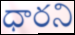
ధారని